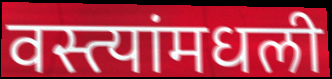
वस्त्यांमधली